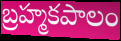
బ్రహ్మకపాలం